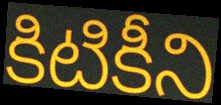
కిటికీని